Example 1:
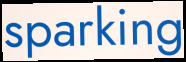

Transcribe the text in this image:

sparking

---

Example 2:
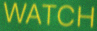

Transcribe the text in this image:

WATCH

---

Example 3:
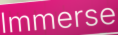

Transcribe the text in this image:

Immerse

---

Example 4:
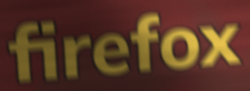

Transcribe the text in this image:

firefox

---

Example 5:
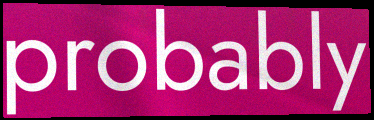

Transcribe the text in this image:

probably